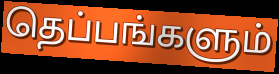
தெப்பங்களும்